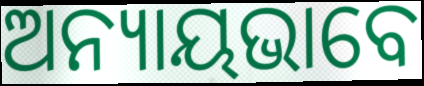
ଅନ୍ୟାୟଭାବେ